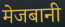
मेजबानी